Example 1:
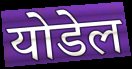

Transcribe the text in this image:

योडेल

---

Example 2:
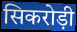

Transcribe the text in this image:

सिकरोड़ी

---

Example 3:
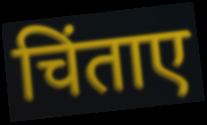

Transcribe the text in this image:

चिंताए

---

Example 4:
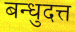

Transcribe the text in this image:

बन्धुदत्त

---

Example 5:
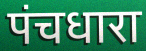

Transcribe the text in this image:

पंचधारा